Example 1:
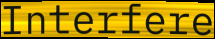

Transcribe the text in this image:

Interfere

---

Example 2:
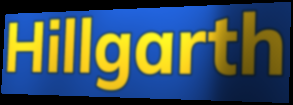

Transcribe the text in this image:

Hillgarth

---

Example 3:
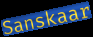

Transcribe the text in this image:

Sanskaar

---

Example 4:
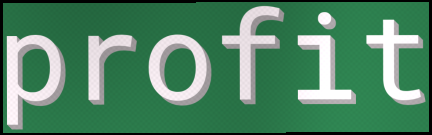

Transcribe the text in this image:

profit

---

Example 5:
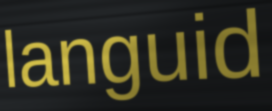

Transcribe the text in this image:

languid